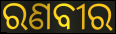
ରଣବୀର